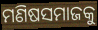
ମଣିଷସମାଜକୁ